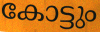
കോട്ടും